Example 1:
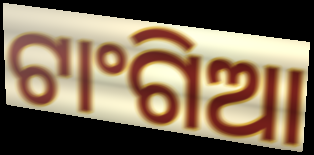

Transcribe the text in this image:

ଟାଂଗିଆ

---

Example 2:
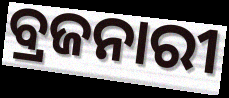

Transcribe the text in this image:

ବ୍ରଜନାରୀ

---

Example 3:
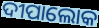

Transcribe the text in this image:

ଦୀପାଲୋକ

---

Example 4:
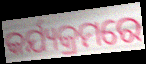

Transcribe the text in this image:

କର୍ଯ୍ୟକ୍ରମରେ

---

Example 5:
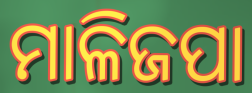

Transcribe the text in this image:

ମାଳିଜପା